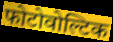
फोटोवोल्टिक